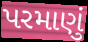
પરમાણું